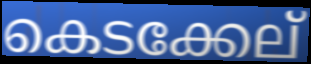
കെടക്കേല്